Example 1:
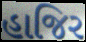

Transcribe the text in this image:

હાજિર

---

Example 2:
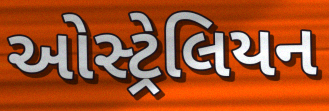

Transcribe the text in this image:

ઓસ્ટ્રેલિયન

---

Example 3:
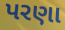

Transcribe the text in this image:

પરણા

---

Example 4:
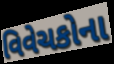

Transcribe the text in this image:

વિવેચકોના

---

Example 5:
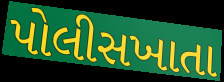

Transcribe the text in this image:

પોલીસખાતા